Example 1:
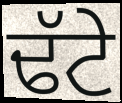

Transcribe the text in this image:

ਢੱਟੇ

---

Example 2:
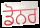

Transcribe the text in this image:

ਡੋਨਰ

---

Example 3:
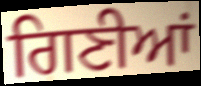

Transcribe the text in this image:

ਗਿਣੀਆਂ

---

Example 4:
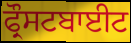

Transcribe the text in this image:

ਫ੍ਰੌਸਟਬਾਈਟ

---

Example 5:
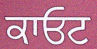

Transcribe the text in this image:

ਕਾਓਟ